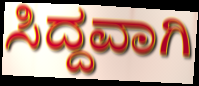
ಸಿದ್ದವಾಗಿ